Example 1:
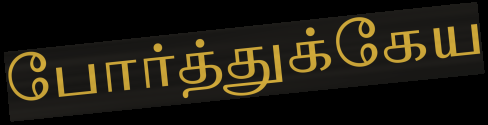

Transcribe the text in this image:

போர்த்துக்கேய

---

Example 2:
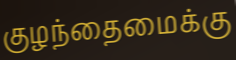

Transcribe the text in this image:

குழந்தைமைக்கு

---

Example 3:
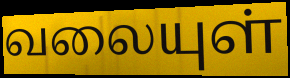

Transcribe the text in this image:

வலையுள்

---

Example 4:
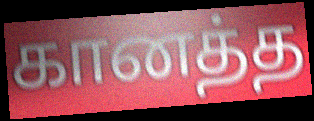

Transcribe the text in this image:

கானத்த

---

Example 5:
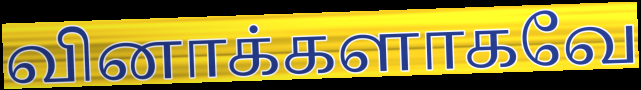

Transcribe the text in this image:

வினாக்களாகவே